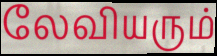
லேவியரும்